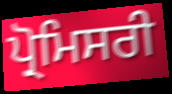
ਪ੍ਰੋਮਿਸਰੀ